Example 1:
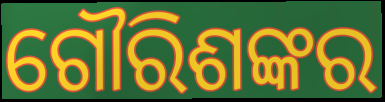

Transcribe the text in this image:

ଗୌରିଶଙ୍କର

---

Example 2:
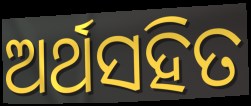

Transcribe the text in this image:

ଅର୍ଥସହିତ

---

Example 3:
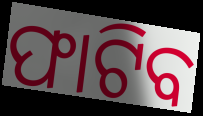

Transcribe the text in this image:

ଫାଟିବ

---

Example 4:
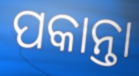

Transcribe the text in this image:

ପକାନ୍ତା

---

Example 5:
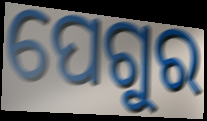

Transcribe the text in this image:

ପେଗୁର